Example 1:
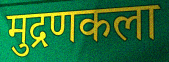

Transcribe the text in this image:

मुद्रणकला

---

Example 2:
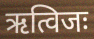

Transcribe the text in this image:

ऋत्विजः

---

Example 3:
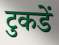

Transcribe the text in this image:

टुकडें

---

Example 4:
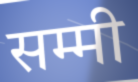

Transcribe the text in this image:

सम्मी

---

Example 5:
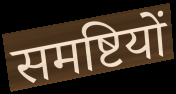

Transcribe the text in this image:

समष्टियों